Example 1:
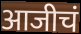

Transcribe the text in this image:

आजीचं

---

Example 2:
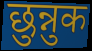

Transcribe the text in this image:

छुन्नुक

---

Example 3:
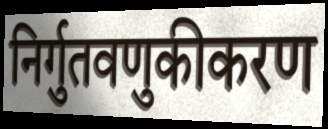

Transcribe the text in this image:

निर्गुतवणुकीकरण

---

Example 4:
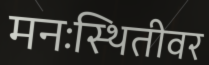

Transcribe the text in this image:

मनःस्थितीवर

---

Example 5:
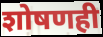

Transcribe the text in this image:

शोषणही